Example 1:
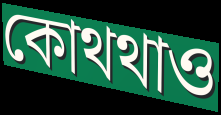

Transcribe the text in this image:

কোথথাও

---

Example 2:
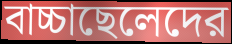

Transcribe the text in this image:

বাচ্চাছেলেদের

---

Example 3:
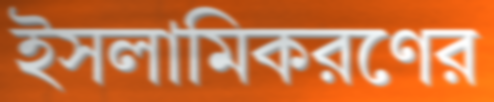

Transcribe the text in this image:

ইসলামিকরণের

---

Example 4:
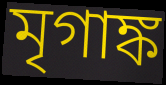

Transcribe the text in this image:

মৃগাঙ্ক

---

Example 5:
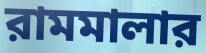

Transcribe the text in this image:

রামমালার